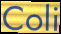
Coli